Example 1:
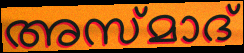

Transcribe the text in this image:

അസ്മാദ്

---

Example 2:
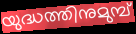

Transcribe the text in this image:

യുദ്ധത്തിനുമുമ്പ്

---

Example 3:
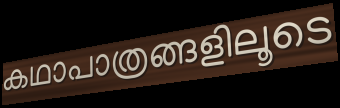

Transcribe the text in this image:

കഥാപാത്രങ്ങളിലൂടെ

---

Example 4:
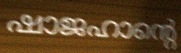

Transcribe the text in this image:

ഷാജഹാന്റെ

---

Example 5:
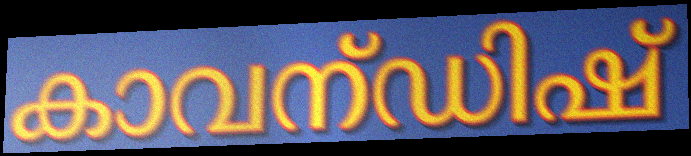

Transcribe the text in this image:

കാവന്ഡിഷ്